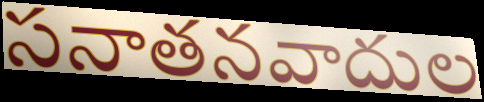
సనాతనవాదుల